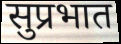
सुप्रभात